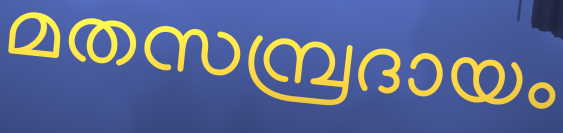
മതസമ്പ്രദായം